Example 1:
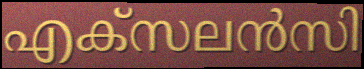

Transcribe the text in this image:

എക്സലൻസി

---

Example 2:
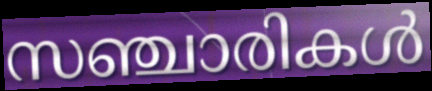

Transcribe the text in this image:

സഞ്ചാരികൾ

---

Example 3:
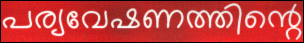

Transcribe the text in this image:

പര്യവേഷണത്തിന്റെ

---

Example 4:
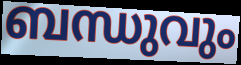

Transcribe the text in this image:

ബന്ധുവും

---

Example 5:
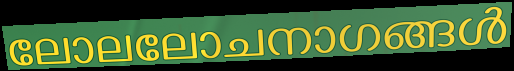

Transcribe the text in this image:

ലോലലോചനാഗങ്ങൾ